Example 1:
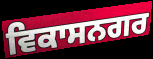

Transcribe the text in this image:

ਵਿਕਾਸਨਗਰ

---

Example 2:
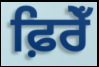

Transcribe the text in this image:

ਫ਼ਿਰੇਁ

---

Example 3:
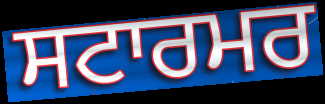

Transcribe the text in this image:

ਸਟਾਰਮਰ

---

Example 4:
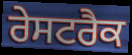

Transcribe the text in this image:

ਰੇਸਟਰੈਕ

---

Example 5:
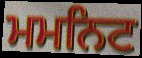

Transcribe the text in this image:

ਮਮਨਿਟ